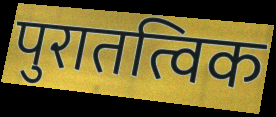
पुरातत्विक